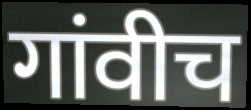
गांवीच